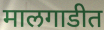
मालगाडीत